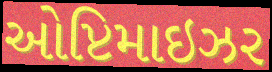
ઓપ્ટિમાઇઝર